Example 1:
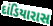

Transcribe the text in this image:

દાંડિયારાસ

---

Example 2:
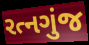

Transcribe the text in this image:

રત્નગુંજ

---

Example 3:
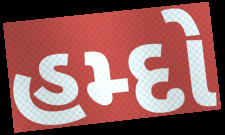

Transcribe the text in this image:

હમ્દો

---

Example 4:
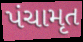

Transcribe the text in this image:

પંચામૃત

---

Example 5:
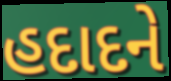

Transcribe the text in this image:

હદાદને